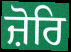
ਜ਼ੋਰਿ